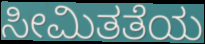
ಸೀಮಿತತೆಯ